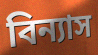
বিন্যাস